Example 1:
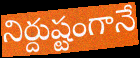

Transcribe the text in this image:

నిర్దుష్టంగానే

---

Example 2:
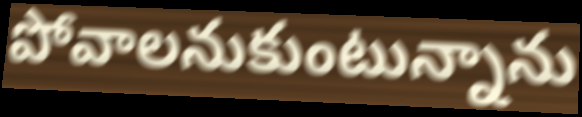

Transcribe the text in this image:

పోవాలనుకుంటున్నాను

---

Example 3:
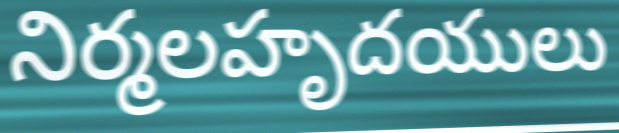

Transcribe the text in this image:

నిర్మలహృదయులు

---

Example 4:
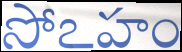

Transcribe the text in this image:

సోఽహం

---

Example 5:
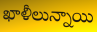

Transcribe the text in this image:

ఖాళీలున్నాయి